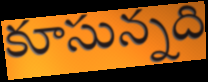
కూసున్నది